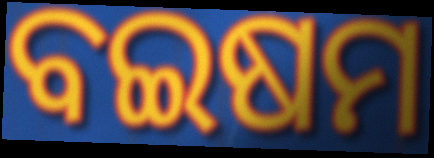
ବଇଷମ